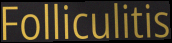
Folliculitis